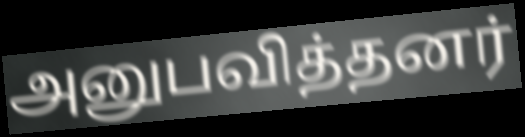
அனுபவித்தனர்